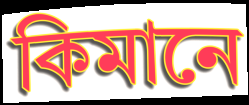
কিমানে